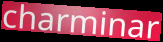
charminar